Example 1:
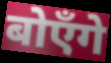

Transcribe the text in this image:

बोएँगे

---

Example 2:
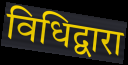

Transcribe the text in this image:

विधिद्वारा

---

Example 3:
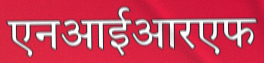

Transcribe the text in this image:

एनआईआरएफ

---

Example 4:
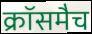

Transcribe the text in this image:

क्रॉसमैच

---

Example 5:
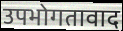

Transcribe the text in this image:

उपभोगतावाद